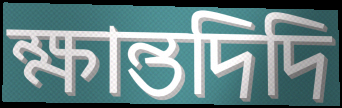
ক্ষান্তদিদি